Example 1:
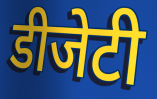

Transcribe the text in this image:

डीजेटी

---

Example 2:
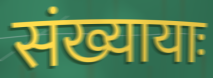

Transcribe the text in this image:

संख्यायाः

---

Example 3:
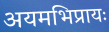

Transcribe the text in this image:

अयमभिप्रायः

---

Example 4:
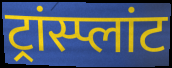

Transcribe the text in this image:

ट्रांस्प्लांट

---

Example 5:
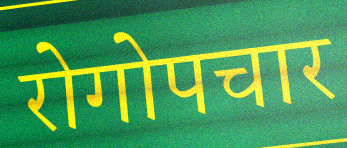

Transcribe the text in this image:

रोगोपचार